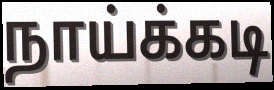
நாய்க்கடி